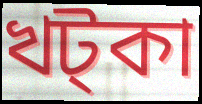
খট্‌কা